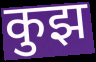
कुझ